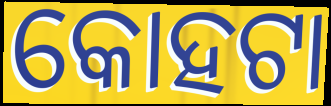
କୋହଟା